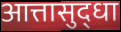
आत्तासुद्धा